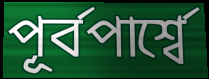
পূর্বপার্শ্বে